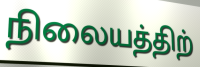
நிலையத்திற்